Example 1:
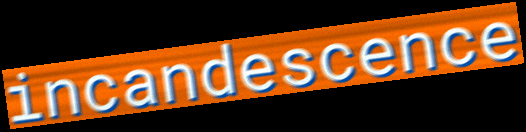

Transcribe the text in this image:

incandescence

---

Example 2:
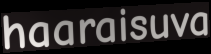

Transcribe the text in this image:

haaraisuva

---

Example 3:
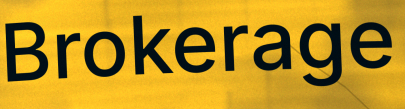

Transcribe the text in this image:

Brokerage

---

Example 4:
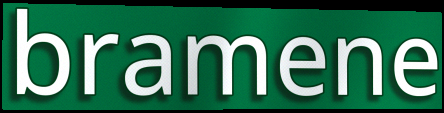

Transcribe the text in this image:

bramene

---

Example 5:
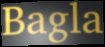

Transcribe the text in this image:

Bagla